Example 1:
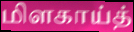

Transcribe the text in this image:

மிளகாய்த்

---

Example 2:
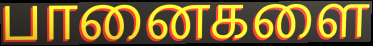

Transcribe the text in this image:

பானைகளை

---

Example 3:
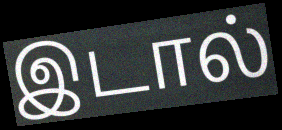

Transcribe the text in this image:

இடால்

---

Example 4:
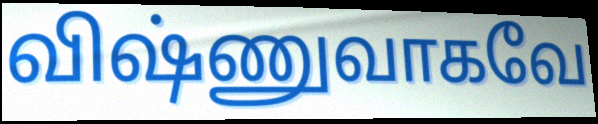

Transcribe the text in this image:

விஷ்ணுவாகவே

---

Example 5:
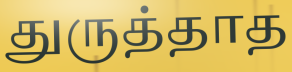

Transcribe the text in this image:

துருத்தாத